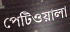
পেটিওয়ালা